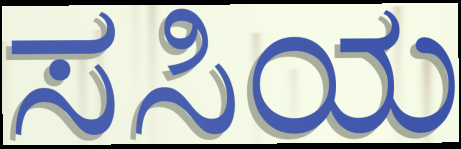
ಸಸಿಯ